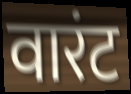
वारंट